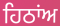
ਹਿਠਾਂਅ